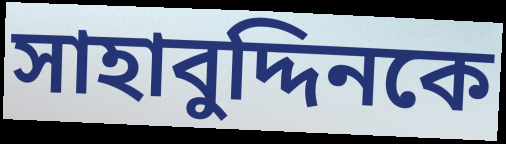
সাহাবুদ্দিনকে